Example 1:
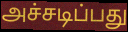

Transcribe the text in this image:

அச்சடிப்பது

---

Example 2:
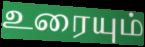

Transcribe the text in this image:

உரையும்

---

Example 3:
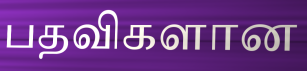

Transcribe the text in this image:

பதவிகளான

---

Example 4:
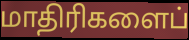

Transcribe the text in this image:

மாதிரிகளைப்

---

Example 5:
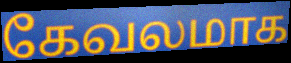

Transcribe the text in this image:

கேவலமாக